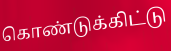
கொண்டுக்கிட்டு